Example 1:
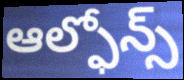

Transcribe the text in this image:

ఆల్ఫోన్స్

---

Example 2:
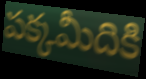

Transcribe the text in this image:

పక్కమీదికి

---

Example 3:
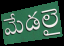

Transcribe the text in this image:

మేడలై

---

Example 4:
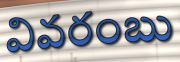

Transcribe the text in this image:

వివరంబు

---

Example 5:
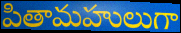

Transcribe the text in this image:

పితామహులుగా